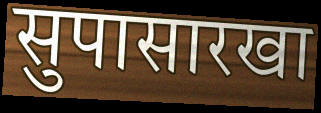
सुपासारखा